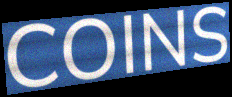
COINS